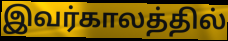
இவர்காலத்தில்